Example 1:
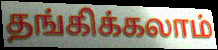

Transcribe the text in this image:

தங்கிக்கலாம்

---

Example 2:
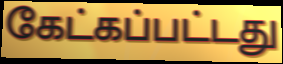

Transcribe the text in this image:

கேட்கப்பட்டது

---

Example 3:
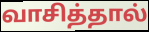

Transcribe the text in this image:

வாசித்தால்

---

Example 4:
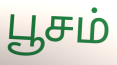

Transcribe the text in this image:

பூசம்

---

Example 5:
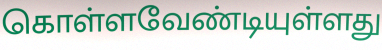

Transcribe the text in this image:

கொள்ளவேண்டியுள்ளது